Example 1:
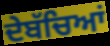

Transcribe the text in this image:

ਦੇਬੱਚਿਆਂ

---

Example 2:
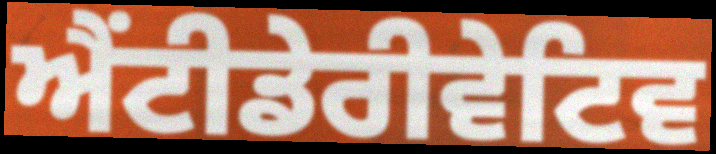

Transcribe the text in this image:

ਐਂਟੀਡੇਰੀਵੇਟਿਵ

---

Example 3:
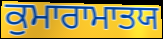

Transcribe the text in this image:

ਕੁਮਾਰਾਮਾਤਯ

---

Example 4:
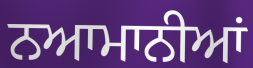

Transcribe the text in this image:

ਨਆਮਾਨੀਆਂ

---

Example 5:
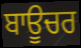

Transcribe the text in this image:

ਬਾਊਚਰ